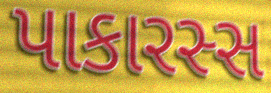
પાકારસ્સ